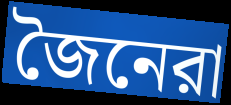
জৈনেরা